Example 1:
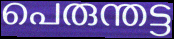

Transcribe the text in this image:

പെരുന്തട്ട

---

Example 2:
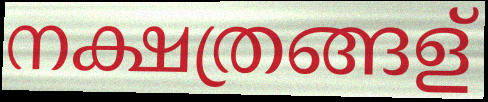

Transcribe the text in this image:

നക്ഷത്രങ്ങള്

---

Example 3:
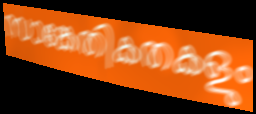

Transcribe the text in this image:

സാങ്കേതികതകളും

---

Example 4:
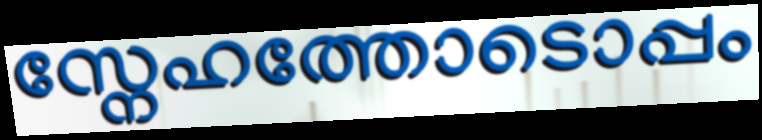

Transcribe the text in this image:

സ്നേഹത്തോടൊപ്പം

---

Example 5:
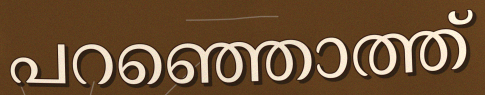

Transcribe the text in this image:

പറഞ്ഞൊത്ത്